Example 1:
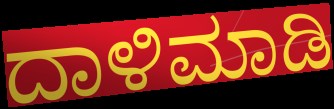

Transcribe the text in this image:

ದಾಳಿಮಾಡಿ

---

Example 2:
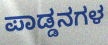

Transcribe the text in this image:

ಪಾಡ್ಡನಗಳ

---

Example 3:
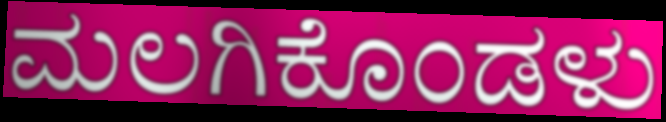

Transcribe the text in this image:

ಮಲಗಿಕೊಂಡಳು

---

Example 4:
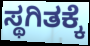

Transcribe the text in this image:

ಸ್ಥಗಿತಕ್ಕೆ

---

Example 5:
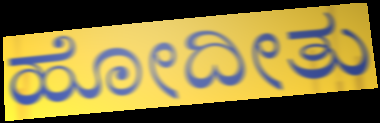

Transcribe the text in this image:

ಹೋದೀತು